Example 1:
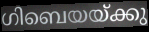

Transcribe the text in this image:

ഗിബെയയ്ക്കു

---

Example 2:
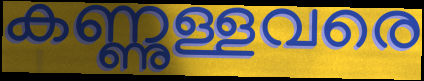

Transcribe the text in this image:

കണ്ണുള്ളവരെ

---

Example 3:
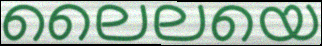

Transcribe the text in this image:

ലൈലയെ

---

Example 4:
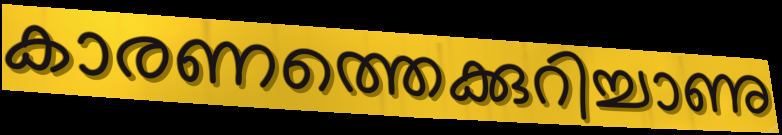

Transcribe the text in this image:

കാരണത്തെക്കുറിച്ചാണു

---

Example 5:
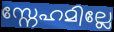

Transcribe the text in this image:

സ്നേഹമില്ലേ